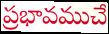
ప్రభావముచే